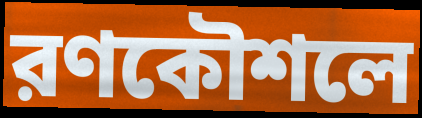
রণকৌশলে